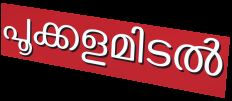
പൂക്കളമിടൽ